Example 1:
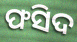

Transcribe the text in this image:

ଫସିଦ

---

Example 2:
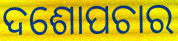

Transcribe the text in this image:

ଦଶୋପଚାର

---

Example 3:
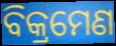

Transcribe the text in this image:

ବିକ୍ରମେଣ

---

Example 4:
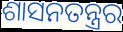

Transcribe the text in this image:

ଶାସନତନ୍ତ୍ରର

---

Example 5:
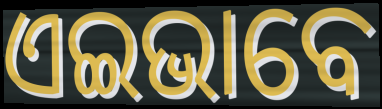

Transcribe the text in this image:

ଏଇଭାବେ